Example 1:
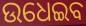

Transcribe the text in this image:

ଉଧେଇବ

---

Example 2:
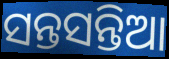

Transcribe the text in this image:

ସନ୍ତସନ୍ତିଆ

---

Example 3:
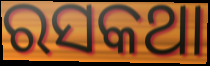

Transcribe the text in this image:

ରସକଥା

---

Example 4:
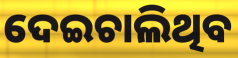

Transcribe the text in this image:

ଦେଇଚାଲିଥିବ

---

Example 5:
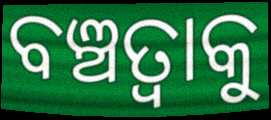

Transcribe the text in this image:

ବଞ୍ଚତ୍ବାକୁ